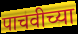
पाचवीच्या